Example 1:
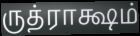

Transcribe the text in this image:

ருத்ராக்ஷம்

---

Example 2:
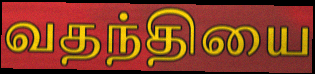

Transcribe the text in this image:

வதந்தியை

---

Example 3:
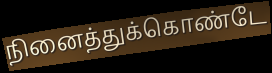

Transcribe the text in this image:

நினைத்துக்கொண்டே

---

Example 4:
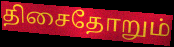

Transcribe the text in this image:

திசைதோறும்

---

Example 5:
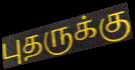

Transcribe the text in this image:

புதருக்கு